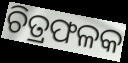
ଚିତ୍ରଫଳକ